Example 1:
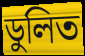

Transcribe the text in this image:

ডুলিত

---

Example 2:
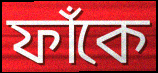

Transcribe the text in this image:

ফাঁকে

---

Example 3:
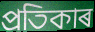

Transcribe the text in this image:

প্ৰতিকাৰ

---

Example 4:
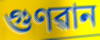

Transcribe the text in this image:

গুণৱান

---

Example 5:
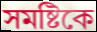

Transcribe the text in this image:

সমষ্টিকে